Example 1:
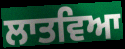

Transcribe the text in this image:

ਲਾਤਵਿਆ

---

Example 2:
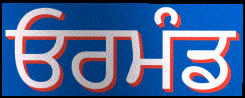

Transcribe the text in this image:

ਓਰਮੰਡ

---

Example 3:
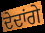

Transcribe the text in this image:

ਦੇਦਾਂਗੇ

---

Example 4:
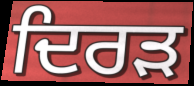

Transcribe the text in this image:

ਦਿਰੜ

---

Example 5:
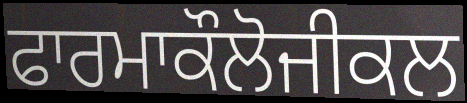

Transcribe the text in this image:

ਫਾਰਮਾਕੌਲੋਜੀਕਲ